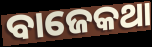
ବାଜେକଥା